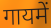
गायमें